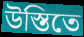
উস্তিতে